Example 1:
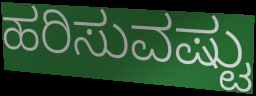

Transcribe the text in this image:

ಹರಿಸುವಷ್ಟು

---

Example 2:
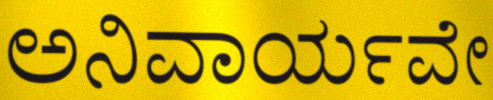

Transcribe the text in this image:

ಅನಿವಾರ್ಯವೇ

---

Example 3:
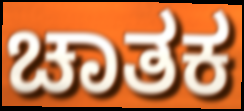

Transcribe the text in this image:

ಚಾತಕ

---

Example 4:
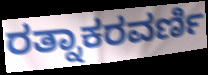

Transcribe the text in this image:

ರತ್ನಾಕರವರ್ಣಿ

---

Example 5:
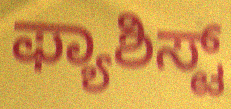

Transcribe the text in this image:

ಫ್ಯಾಶಿಸ್ಟ್